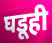
घडूही